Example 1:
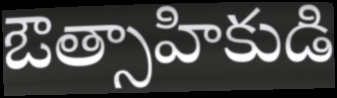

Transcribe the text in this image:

ఔత్సాహికుడి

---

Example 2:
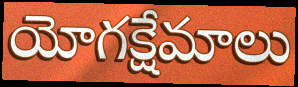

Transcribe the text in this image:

యోగక్షేమాలు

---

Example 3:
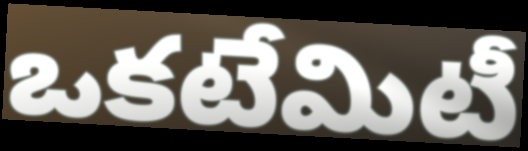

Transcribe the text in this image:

ఒకటేమిటీ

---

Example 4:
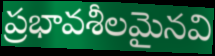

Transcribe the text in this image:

ప్రభావశీలమైనవి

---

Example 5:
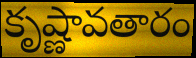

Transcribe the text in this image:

కృష్ణావతారం